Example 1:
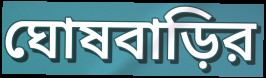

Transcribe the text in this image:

ঘোষবাড়ির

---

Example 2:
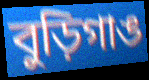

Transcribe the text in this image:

বুড়িগাঙ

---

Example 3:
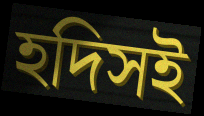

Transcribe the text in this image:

হদিসই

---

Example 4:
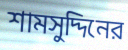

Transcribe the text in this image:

শামসুদ্দিনের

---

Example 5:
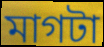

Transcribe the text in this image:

মাগটা